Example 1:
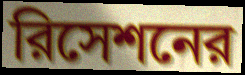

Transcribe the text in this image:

রিসেশনের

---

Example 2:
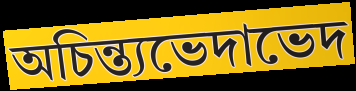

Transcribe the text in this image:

অচিন্ত্যভেদাভেদ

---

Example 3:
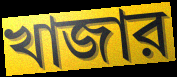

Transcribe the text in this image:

খাজার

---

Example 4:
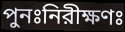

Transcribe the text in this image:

পুনঃনিরীক্ষণঃ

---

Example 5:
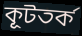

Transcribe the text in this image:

কূটতর্ক